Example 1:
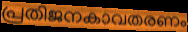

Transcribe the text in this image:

പ്രതിജനകാവതരണം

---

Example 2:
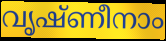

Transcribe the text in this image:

വൃഷ്ണീനാം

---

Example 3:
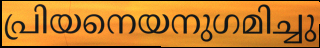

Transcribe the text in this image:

പ്രിയനെയനുഗമിച്ചു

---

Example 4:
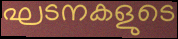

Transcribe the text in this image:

ഘടനകളുടെ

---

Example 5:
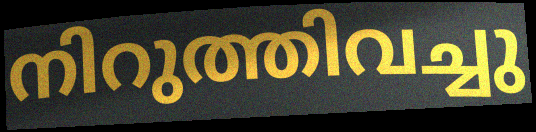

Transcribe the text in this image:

നിറുത്തിവച്ചു